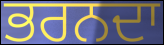
ਭਰਨਦਾ